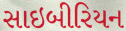
સાઇબીરિયન